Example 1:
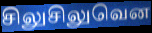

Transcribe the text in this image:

சிலுசிலுவென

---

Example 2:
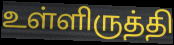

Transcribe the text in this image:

உள்ளிருத்தி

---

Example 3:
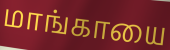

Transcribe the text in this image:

மாங்காயை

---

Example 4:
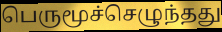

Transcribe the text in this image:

பெருமூச்செழுந்தது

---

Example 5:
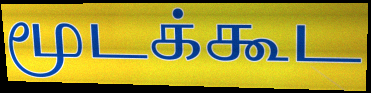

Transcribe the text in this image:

மூடக்கூட